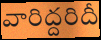
వారిద్దరిదీ